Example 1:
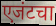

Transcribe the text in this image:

एजंटचा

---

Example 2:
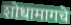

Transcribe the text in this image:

शोधामागचे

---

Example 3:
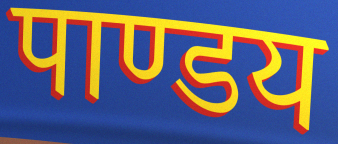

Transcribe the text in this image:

पाण्डय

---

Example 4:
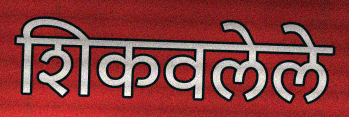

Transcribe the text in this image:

शिकवलेले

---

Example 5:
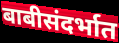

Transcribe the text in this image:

बाबीसंदर्भात